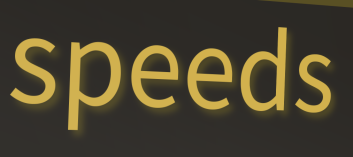
speeds